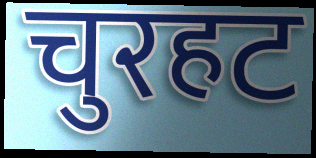
चुरहट